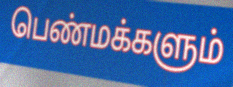
பெண்மக்களும்